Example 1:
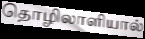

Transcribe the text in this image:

தொழிலாளியால்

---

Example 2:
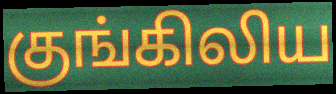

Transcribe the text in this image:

குங்கிலிய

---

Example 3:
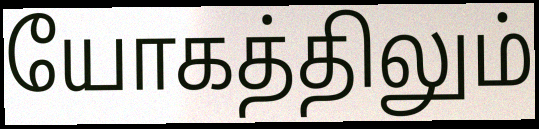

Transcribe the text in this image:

யோகத்திலும்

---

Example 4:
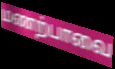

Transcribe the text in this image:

மணற்பாவை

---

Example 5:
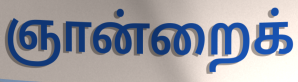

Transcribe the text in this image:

ஞான்றைக்